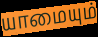
யாமையும்